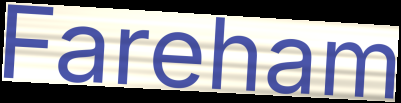
Fareham